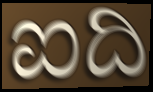
ಐದಿ